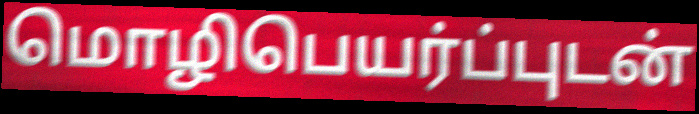
மொழிபெயர்ப்புடன்